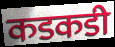
कडकडी